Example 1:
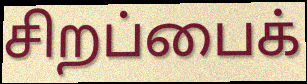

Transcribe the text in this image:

சிறப்பைக்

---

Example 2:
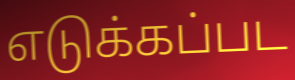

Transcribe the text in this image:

எடுக்கப்பட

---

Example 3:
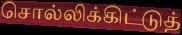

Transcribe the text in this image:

சொல்லிக்கிட்டுத்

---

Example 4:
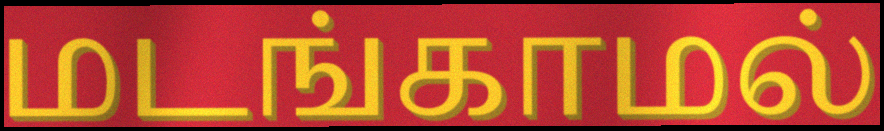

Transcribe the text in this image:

மடங்காமல்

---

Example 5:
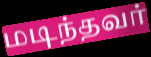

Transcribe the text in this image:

மடிந்தவர்